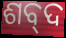
ଶବ୍‌ଦ